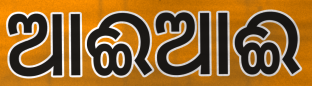
ଆଈଆଈ